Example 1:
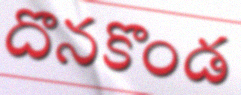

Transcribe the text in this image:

దొనకొండ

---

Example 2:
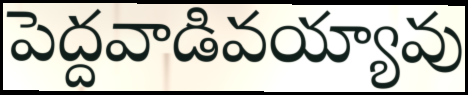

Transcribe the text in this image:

పెద్దవాడివయ్యావు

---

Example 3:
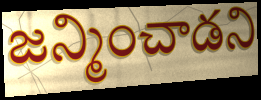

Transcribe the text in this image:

జన్మించాడని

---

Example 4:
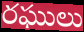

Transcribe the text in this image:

రఘులు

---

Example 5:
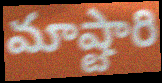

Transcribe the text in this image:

మాష్టారి